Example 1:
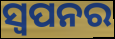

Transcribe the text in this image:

ସ୍ଵପନର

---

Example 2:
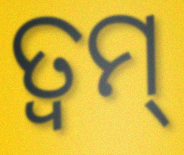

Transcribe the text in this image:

ତ୍ୱମ୍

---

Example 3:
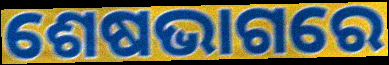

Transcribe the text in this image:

ଶେଷଭାଗରେ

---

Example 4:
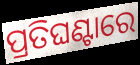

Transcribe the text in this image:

ପ୍ରତିଘଣ୍ଟାରେ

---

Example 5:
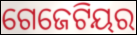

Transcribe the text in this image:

ଗେଜେଟିୟର